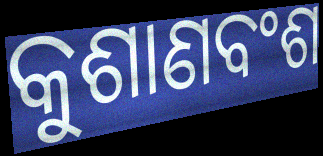
କୁଶାଣବଂଶ